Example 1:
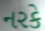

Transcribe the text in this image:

નરકે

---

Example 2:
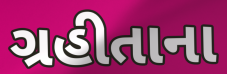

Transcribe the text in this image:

ગ્રહીતાના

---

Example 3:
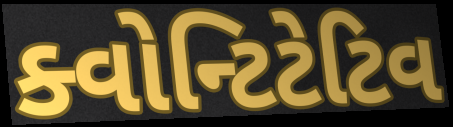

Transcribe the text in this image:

ક્વોન્ટિટેટિવ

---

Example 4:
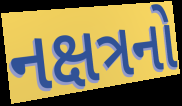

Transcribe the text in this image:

નક્ષત્રનો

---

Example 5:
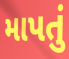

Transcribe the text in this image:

માપતું